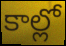
కాల్లో